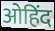
ओहिंद